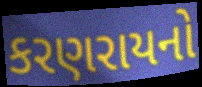
કરણરાયનો